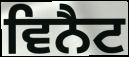
ਵਿਨੈਟ